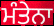
ਮੰਤੇਨਾ